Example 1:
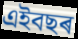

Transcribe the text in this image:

এইবছৰ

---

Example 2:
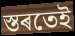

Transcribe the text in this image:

স্তৰতেই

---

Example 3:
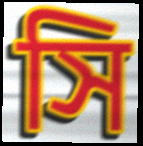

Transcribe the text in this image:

সি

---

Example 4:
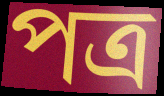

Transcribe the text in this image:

পত্ৰ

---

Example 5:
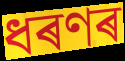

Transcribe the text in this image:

ধৰণৰ